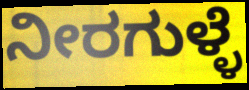
ನೀರಗುಳ್ಳೆ